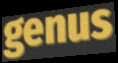
genus